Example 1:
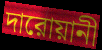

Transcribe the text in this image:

দারোয়ানী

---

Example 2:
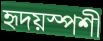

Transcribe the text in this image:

হৃদয়স্পশী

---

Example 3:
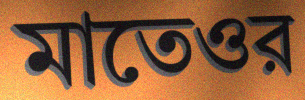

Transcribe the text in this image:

মাতেওর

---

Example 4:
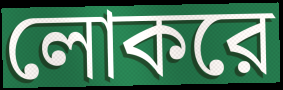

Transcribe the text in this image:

লোকরে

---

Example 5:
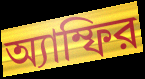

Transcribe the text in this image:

অ্যাম্ফির